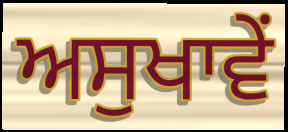
ਅਸੁਖਾਵੇਂ